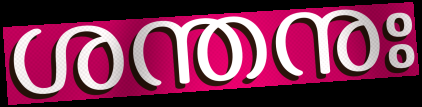
ശന്തനുഃ